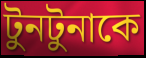
টুনটুনাকে